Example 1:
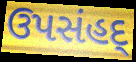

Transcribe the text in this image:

ઉપસંહદ્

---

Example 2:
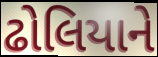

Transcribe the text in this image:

ઢોલિયાને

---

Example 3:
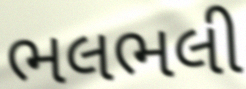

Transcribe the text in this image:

ભલભલી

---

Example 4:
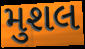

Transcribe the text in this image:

મુશલ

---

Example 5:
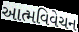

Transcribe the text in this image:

આત્મવિવેચન